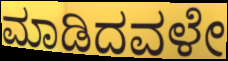
ಮಾಡಿದವಳೇ